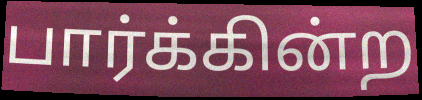
பார்க்கின்ற